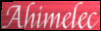
Ahimelec